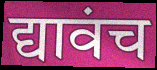
द्यावंच